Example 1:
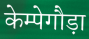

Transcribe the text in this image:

केम्पेगौड़ा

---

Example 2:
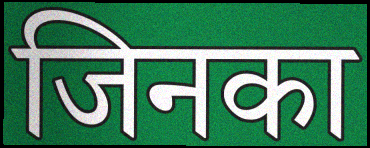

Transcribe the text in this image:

जिनका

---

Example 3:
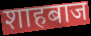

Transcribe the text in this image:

शाहबाज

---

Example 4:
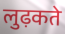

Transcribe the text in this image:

लुढ़कते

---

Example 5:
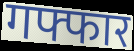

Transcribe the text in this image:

गफ्फार